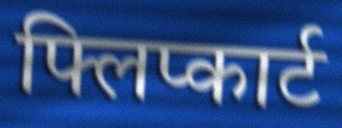
फ्लिप्कार्ट